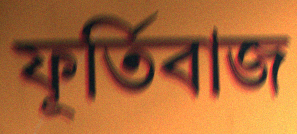
ফূর্তিবাজ